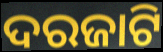
ଦରଜାଟି